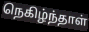
நெகிழ்ந்தாள்